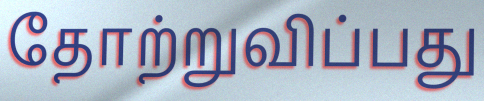
தோற்றுவிப்பது